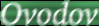
Ovodov